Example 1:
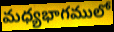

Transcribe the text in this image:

మధ్యభాగములో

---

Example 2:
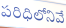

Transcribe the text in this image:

పరిధిలోనివే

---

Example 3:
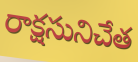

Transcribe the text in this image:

రాక్షసునిచేత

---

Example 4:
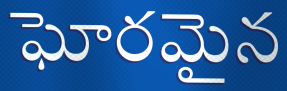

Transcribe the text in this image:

ఘోరమైన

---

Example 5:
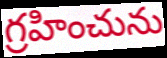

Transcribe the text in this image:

గ్రహించును